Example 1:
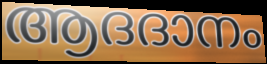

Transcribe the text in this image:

ആദദാനം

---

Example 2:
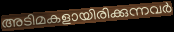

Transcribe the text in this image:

അടിമകളായിരിക്കുന്നവർ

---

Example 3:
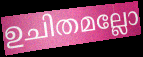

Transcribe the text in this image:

ഉചിതമല്ലോ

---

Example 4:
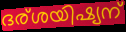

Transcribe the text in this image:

ദര്ശയിഷ്യന്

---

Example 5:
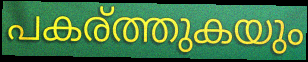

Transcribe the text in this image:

പകര്ത്തുകയും